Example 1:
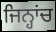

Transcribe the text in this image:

ਜਿਨ੍ਹਾਂਚ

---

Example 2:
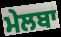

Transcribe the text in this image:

ਮੇਲਬਾ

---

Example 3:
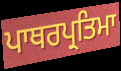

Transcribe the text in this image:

ਪਾਥਰਪ੍ਰਤਿਮਾ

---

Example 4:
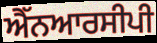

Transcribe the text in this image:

ਐੱਨਆਰਸੀਪੀ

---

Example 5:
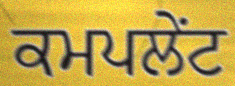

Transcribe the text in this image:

ਕਮਪਲੇਂਟ